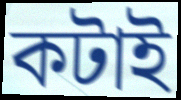
কটাই